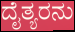
ದೈತ್ಯರನು